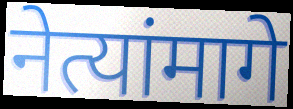
नेत्यांमागे